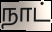
நாட்